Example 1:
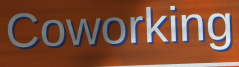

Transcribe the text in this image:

Coworking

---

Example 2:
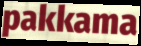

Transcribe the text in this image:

pakkama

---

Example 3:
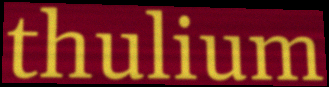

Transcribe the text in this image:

thulium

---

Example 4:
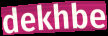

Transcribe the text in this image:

dekhbe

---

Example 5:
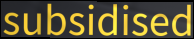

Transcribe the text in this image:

subsidised